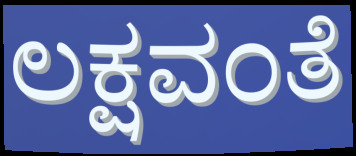
ಲಕ್ಷವಂತೆ